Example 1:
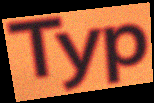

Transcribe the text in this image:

Typ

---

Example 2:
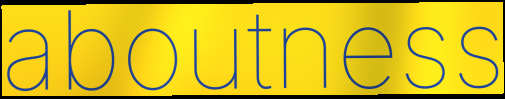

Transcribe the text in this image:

aboutness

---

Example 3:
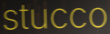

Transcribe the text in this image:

stucco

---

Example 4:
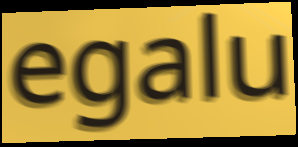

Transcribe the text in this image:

egalu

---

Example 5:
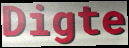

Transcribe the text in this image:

Digte